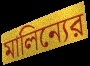
মালিন্যের